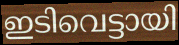
ഇടിവെട്ടായി